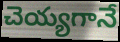
చెయ్యగానే